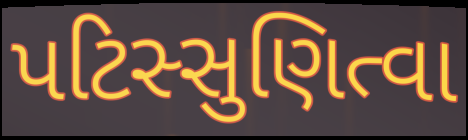
પટિસ્સુણિત્વા